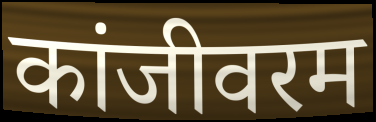
कांजीवरम